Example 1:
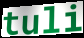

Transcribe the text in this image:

tuli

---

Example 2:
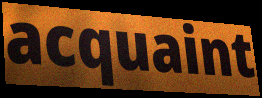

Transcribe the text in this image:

acquaint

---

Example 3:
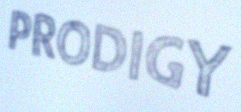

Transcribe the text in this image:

PRODIGY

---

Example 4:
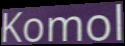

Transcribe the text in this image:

Komol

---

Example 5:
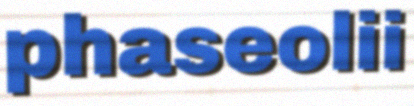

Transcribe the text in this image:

phaseolii